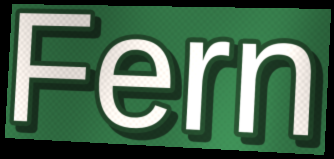
Fern